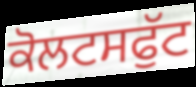
ਕੋਲਟਸਫੁੱਟ